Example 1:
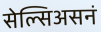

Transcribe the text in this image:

सेल्सिअसनं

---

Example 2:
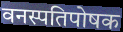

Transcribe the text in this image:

वनस्पतिपोषक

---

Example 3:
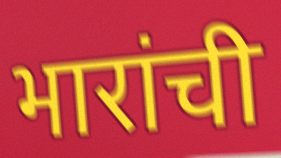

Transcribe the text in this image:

भारांची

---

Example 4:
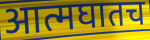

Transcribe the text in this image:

आत्मघातच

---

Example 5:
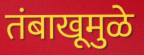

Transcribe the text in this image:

तंबाखूमुळे